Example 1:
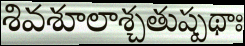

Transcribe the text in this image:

శివశూలాశ్చతుష్పథాః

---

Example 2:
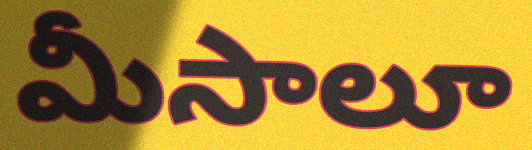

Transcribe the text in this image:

మీసాలూ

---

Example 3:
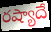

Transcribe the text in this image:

రష్యాదే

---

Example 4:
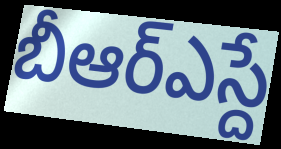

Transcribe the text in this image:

బీఆర్ఎస్దే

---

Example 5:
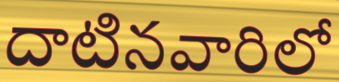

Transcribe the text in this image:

దాటినవారిలో